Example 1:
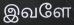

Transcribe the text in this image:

இவளே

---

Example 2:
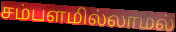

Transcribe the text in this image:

சம்பளமில்லாமல்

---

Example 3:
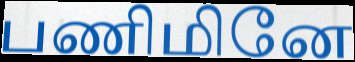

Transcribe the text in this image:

பணிமினே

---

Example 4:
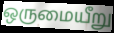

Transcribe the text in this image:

ஒருமையீறு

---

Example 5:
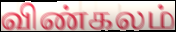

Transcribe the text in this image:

விண்கலம்